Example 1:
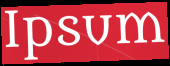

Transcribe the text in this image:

Ipsum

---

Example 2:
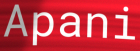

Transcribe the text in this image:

Apani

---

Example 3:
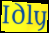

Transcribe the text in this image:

Idly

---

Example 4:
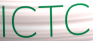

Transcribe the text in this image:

ICTC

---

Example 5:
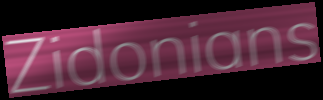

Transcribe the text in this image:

Zidonians